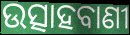
ଉତ୍ସାହବାଣୀ